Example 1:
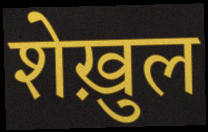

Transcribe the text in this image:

शेख़ुल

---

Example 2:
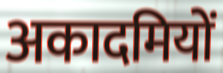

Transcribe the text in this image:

अकादमियों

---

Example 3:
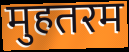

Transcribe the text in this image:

मुहतरम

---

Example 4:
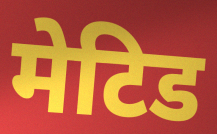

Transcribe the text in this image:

मेटिड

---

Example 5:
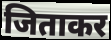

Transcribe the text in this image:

जिताकर